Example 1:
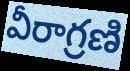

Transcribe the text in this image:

వీరాగ్రణి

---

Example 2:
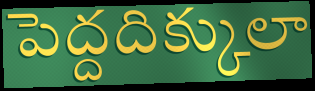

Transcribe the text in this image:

పెద్దదిక్కులా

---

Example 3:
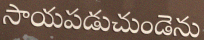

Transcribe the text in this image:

సాయపడుచుండెను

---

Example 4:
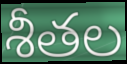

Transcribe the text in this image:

శీతల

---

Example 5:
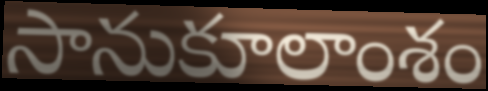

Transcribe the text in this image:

సానుకూలాంశం